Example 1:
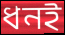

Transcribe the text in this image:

ধনই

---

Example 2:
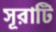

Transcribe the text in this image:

সূরাটি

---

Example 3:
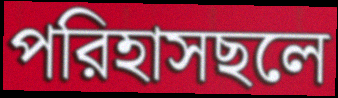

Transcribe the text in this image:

পরিহাসছলে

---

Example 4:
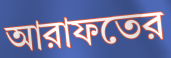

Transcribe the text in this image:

আরাফতের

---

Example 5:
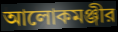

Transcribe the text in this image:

আলোকমঞ্জীর